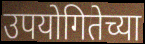
उपयोगितेच्या